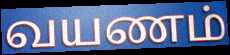
வயணம்